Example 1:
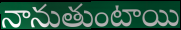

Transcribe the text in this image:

నానుతుంటాయి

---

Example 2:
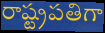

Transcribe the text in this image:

రాష్ట్రపతిగా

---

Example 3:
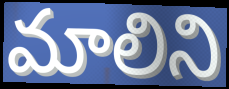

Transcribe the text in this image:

మాలిని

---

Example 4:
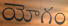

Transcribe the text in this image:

యోగం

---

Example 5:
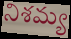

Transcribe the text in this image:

నిశమ్య